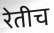
रेतीच